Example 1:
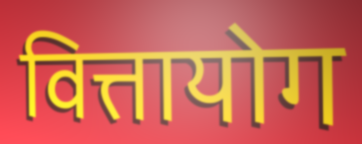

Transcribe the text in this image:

वित्तायोग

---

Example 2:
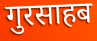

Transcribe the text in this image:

गुरसाहब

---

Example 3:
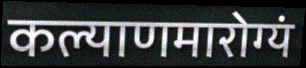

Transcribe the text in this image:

कल्याणमारोग्यं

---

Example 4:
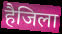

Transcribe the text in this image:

हैजिला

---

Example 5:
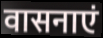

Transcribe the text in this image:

वासनाएं